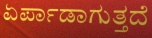
ಏರ್ಪಾಡಾಗುತ್ತದೆ